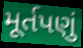
મૂર્તપણું